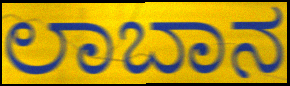
ಲಾಬಾನ